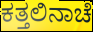
ಕತ್ತಲಿನಾಚೆ